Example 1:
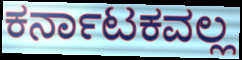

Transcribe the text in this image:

ಕರ್ನಾಟಕವಲ್ಲ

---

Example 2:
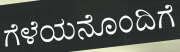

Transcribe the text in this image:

ಗೆಳೆಯನೊಂದಿಗೆ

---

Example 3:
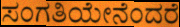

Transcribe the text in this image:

ಸಂಗತಿಯೇನೆಂದರೆ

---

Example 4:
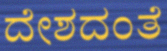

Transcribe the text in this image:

ದೇಶದಂತೆ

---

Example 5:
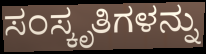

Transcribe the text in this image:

ಸಂಸ್ಕೃತಿಗಳನ್ನು